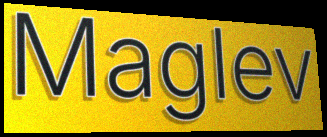
Maglev